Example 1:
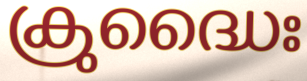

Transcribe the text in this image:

ക്രുദ്ധൈഃ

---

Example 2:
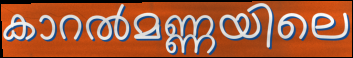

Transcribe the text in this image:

കാറൽമണ്ണയിലെ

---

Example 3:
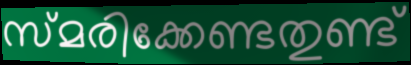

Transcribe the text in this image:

സ്മരിക്കേണ്ടതുണ്ട്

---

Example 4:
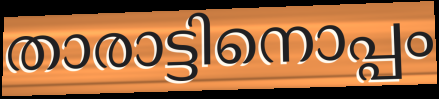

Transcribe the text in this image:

താരാട്ടിനൊപ്പം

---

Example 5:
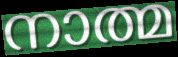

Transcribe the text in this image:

നാത്മ